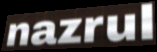
nazrul